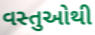
વસ્તુઓથી